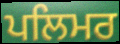
ਪਲਿਮਰ